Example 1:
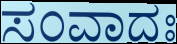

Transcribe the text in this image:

ಸಂವಾದಃ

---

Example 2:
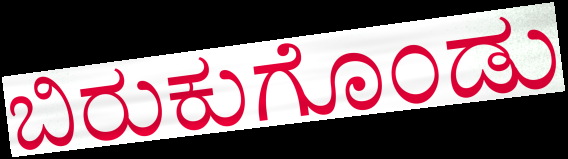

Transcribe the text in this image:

ಬಿರುಕುಗೊಂಡು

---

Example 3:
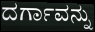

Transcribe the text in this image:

ದರ್ಗಾವನ್ನು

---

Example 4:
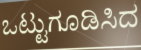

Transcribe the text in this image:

ಒಟ್ಟುಗೂಡಿಸಿದ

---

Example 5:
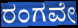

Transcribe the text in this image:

ರಂಗವೇ